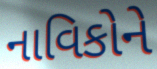
નાવિકોને